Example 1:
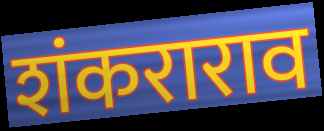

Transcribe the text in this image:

शंकराराव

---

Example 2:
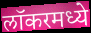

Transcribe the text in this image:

लॉकरमध्ये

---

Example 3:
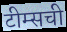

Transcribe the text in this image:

टीम्सची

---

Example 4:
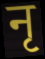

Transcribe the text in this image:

नृ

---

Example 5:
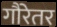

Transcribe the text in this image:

गौरेतर